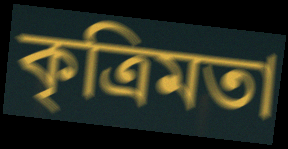
কৃত্রিমতা